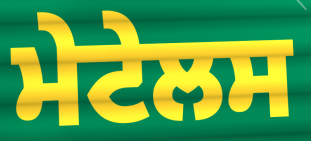
ਮੇਟੇਲਸ